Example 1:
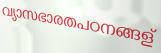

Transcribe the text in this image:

വ്യാസഭാരതപഠനങ്ങള്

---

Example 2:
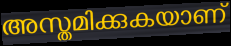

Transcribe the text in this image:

അസ്തമിക്കുകയാണ്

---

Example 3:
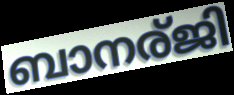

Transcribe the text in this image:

ബാനര്ജി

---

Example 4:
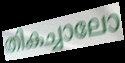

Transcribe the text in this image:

തികച്ചാലോ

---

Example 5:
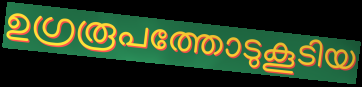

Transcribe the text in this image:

ഉഗ്രരൂപത്തോടുകൂടിയ